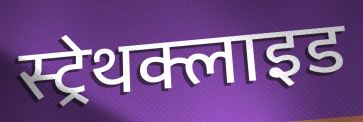
स्ट्रेथक्लाइड